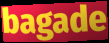
bagade